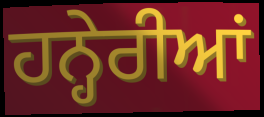
ਹਨ੍ਹੇਰੀਆਂ